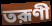
তরূণী